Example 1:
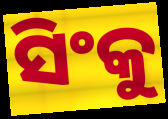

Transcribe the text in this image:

ସିଂକୁ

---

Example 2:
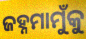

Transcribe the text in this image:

ଜହ୍ନମାମୁଁକୁ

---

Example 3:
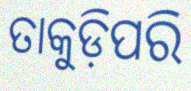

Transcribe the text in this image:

ତାକୁଡ଼ିପରି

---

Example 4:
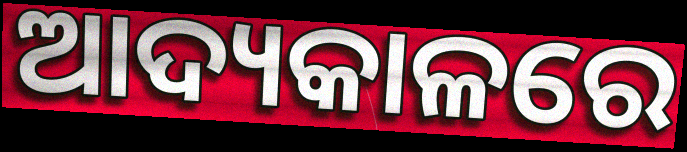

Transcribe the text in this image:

ଆଦ୍ୟକାଳରେ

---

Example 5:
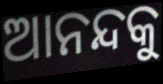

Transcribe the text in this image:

ଆନନ୍ଦକୁ